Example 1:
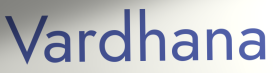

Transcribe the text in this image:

Vardhana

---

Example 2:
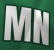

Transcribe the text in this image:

MN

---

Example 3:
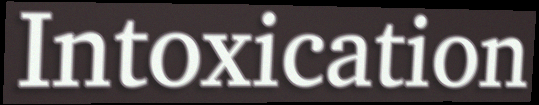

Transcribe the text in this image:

Intoxication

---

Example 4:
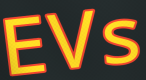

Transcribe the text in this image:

EVs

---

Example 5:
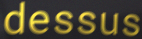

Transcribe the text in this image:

dessus